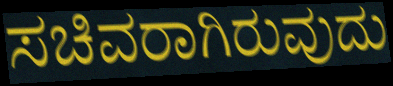
ಸಚಿವರಾಗಿರುವುದು